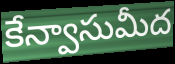
కేన్వాసుమీద